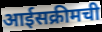
आईसक्रीमची